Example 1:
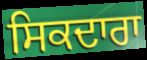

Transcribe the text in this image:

ਸਿਕਦਾਰਾ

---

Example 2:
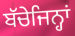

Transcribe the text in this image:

ਬੱਚੇਜਿਨ੍ਹਾਂ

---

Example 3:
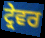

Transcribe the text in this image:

ਟ੍ਰੇਵਰ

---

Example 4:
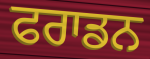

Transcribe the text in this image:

ਫਰਾਡਨ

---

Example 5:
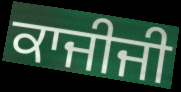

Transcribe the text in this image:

ਕਾਜੀਜੀ